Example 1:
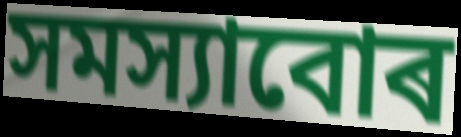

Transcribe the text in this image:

সমস্যাবোৰ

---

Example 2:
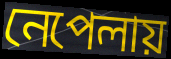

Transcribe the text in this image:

নেপেলায়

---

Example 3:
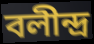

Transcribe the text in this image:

বলীন্দ্ৰ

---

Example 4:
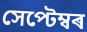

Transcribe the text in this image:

সেপ্টেম্বৰ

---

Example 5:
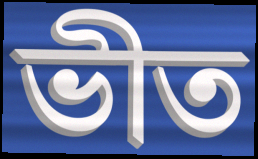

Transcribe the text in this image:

ভীত